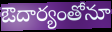
ఔదార్యంతోనూ